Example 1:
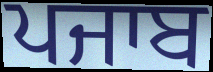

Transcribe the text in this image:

ਪਜਾਬ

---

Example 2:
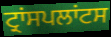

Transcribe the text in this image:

ਟ੍ਰਾਂਸਪਲਾਂਟਸ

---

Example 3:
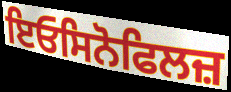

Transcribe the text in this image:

ਇਓਸਿਨੋਫਿਲਜ਼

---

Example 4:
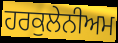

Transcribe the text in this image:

ਹਰਕੁਲੇਨੀਅਮ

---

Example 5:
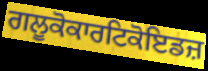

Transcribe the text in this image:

ਗਲੂਕੋਕਾਰਟਿਕੋਇਡਜ਼